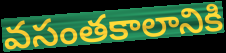
వసంతకాలానికి